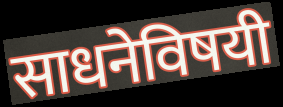
साधनेविषयी